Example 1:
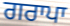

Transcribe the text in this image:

ਗਰਾਪਾ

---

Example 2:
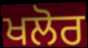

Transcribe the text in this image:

ਖਲੋਰ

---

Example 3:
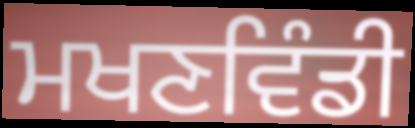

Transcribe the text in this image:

ਮਖਣਵਿੰਡੀ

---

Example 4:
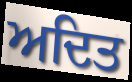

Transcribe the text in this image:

ਅਦਿਤ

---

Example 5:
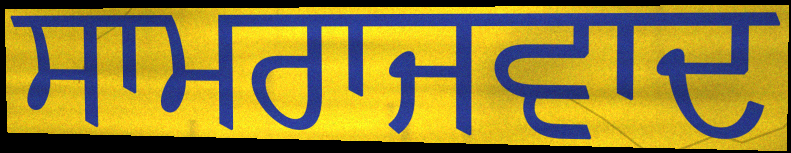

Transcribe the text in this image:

ਸਾਮਰਾਜਵਾਦ